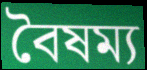
বৈষম্য